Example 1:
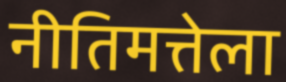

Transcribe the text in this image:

नीतिमत्तेला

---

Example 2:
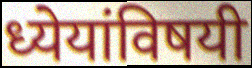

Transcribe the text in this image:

ध्येयांविषयी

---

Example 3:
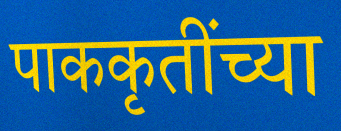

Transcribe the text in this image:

पाककृतींच्या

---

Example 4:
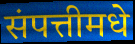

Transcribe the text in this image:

संपत्तीमधे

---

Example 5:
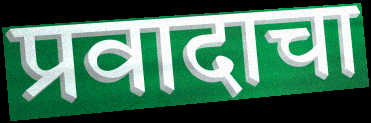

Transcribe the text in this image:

प्रवादाचा